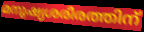
മനുഷ്യശരീരത്തിന്